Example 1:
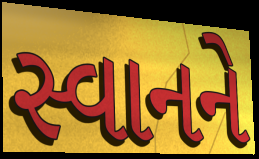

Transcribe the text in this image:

સ્વાનને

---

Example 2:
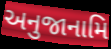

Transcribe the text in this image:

અનુજાનામિ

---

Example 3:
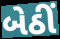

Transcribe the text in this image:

બેઠીં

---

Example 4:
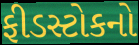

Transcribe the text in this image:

ફીડસ્ટોકનો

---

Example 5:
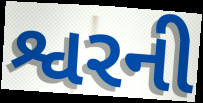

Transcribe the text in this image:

શ્વરની